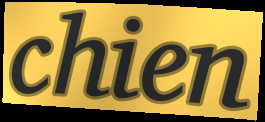
chien